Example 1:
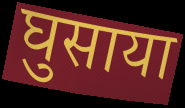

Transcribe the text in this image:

घुसाया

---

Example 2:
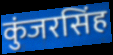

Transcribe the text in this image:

कुंजरसिंह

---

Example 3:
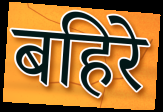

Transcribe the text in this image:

बहिरे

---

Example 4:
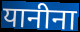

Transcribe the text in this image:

यानीना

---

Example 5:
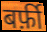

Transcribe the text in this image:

बर्फ़ी